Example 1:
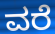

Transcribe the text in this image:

ವರೆ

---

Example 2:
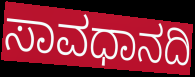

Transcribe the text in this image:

ಸಾವಧಾನದಿ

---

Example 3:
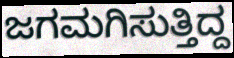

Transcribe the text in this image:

ಜಗಮಗಿಸುತ್ತಿದ್ದ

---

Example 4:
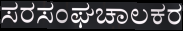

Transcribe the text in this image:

ಸರಸಂಘಚಾಲಕರ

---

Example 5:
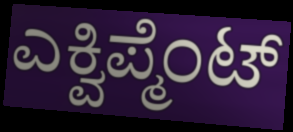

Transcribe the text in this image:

ಎಕ್ವಿಪ್ಮೆಂಟ್